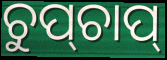
ଚୁପ୍‌ଚାପ୍